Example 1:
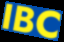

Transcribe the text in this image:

IBC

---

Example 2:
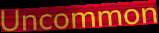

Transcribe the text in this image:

Uncommon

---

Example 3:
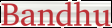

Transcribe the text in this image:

Bandhu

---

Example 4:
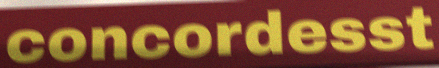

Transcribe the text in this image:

concordesst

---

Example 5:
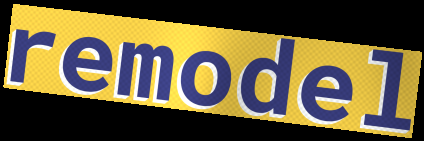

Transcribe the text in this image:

remodel